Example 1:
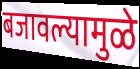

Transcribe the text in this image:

बजावल्यामुळे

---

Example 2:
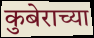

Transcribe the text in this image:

कुबेराच्या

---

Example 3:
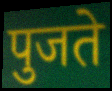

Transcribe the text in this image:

पुजते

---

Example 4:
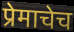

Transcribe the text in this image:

प्रेमाचेच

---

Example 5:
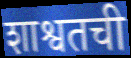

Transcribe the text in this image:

शाश्वतची